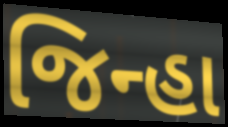
જિન્હા